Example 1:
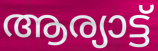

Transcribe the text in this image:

ആര്യാട്ട്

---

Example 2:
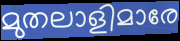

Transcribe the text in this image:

മുതലാളിമാരേ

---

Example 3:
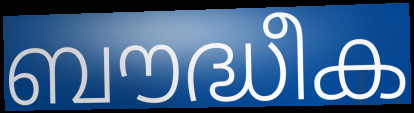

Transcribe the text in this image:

ബൗദ്ധീക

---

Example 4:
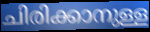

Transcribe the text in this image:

ചിരിക്കാനുള്ള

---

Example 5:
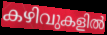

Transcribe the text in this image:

കഴിവുകളിൽ